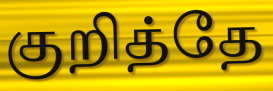
குறித்தே